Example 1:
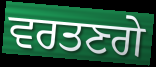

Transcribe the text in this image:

ਵਰਤਣਗੇ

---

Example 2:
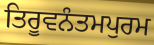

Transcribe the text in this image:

ਤਿਰੂਵਨੰਤਮਪੁਰਮ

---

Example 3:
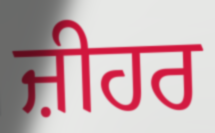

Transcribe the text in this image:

ਜ਼ੀਹਰ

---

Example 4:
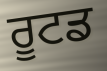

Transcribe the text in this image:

ਰੂਟਡ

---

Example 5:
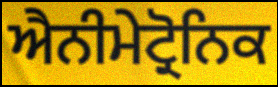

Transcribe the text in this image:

ਐਨੀਮੇਟ੍ਰੋਨਿਕ